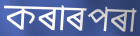
কৰাৰপৰা